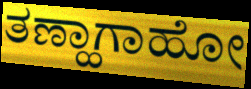
ತಣ್ಹಾಗಾಹೋ